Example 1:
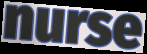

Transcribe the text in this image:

nurse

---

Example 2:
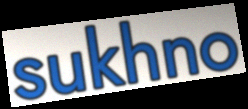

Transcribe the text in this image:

sukhno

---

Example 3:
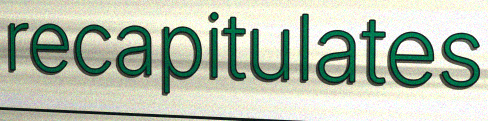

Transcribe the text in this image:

recapitulates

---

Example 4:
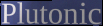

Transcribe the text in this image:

Plutonic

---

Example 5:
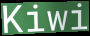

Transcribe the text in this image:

Kiwi